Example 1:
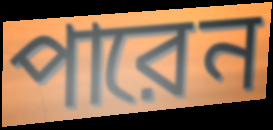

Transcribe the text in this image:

পারেন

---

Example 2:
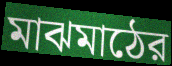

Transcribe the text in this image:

মাঝমাঠের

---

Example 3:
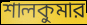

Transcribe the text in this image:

শালকুমার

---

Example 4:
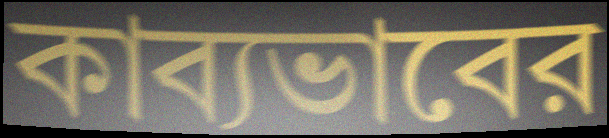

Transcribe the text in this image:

কাব্যভাবের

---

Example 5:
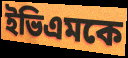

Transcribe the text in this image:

ইভিএমকে